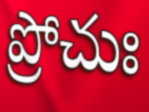
ప్రోచుః